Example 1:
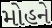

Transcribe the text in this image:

મોહને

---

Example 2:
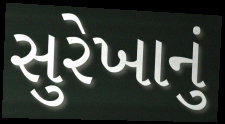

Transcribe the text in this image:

સુરેખાનું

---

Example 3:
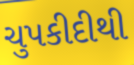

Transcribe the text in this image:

ચુપકીદીથી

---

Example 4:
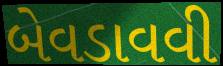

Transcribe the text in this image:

બેવડાવવી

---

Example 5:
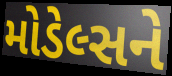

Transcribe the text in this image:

મોડેલ્સને